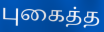
புகைத்த